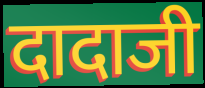
दादाजी